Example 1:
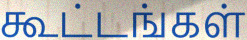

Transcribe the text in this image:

கூட்டங்கள்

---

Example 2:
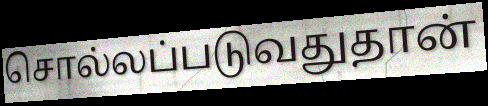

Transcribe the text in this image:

சொல்லப்படுவதுதான்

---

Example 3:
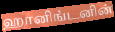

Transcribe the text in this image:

ஹானிங்டனின்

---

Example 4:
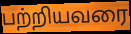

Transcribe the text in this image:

பற்றியவரை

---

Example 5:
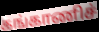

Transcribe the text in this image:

கங்காணிச்